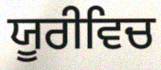
ਯੂਰੀਵਿਚ